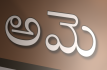
అమె